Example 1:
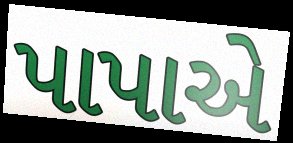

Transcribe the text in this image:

પાપાએ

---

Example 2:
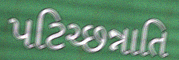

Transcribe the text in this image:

પટિચ્છન્નાતિ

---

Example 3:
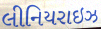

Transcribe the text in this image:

લીનિયરાઇઝ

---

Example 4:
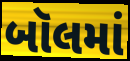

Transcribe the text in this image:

બૉલમાં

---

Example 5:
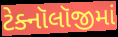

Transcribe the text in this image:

ટેક્નૉલૉજીમાં